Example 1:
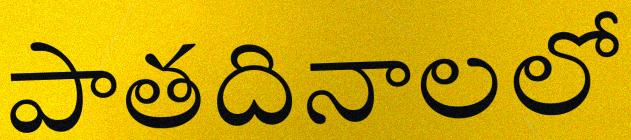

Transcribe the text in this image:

పాతదినాలలో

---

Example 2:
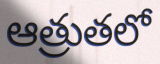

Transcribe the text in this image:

ఆత్రుతలో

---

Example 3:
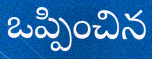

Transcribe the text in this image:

ఒప్పించిన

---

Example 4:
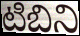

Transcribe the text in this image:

టిబిని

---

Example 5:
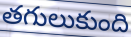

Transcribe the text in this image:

తగులుకుంది